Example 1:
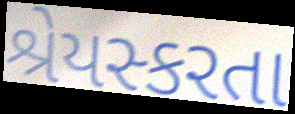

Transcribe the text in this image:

શ્રેયસ્કરતા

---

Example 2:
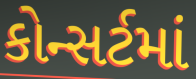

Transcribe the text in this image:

કોન્સર્ટમાં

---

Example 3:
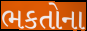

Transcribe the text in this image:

ભકતોના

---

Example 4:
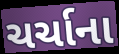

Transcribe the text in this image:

ચર્ચાના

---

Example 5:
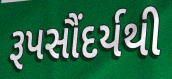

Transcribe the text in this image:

રૂપસૌંદર્યથી